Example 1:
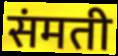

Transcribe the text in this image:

संमती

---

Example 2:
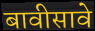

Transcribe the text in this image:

बावीसावे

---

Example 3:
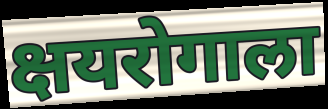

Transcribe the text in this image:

क्षयरोगाला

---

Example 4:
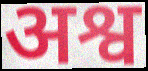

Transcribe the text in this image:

अश्व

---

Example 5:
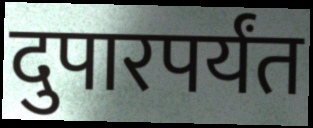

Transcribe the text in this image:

दुपारपर्यंत